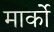
मार्को